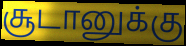
சூடானுக்கு